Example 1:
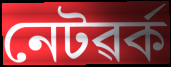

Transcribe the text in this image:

নেটৱৰ্ক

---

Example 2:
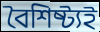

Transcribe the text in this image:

বৈশিষ্ট্যই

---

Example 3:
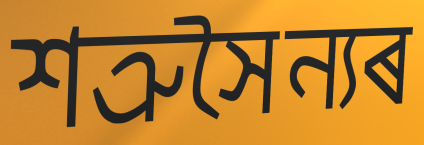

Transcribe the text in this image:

শত্ৰুসৈন্যৰ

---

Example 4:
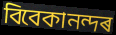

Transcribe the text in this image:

বিবেকানন্দৰ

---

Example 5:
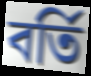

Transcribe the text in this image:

বৰ্তি